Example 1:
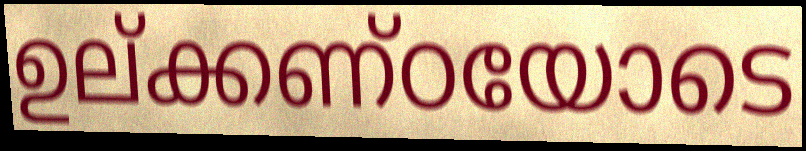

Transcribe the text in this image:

ഉല്ക്കണ്ഠയോടെ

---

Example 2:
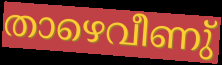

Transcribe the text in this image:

താഴെവീണു്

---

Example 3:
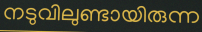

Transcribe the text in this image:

നടുവിലുണ്ടായിരുന്ന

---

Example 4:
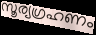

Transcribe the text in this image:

സൂര്യഗ്രഹണം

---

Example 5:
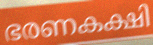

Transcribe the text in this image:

ഭരണകക്ഷി